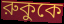
রুকুকে